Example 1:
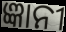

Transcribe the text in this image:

ଜ୍ଞାନୀ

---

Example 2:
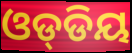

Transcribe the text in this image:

ଓଡ୍‌ଡିୟ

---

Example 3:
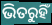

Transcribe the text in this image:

ଭିତରୁହିଁ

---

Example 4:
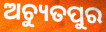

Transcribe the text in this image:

ଅଚ୍ୟୁତପୁର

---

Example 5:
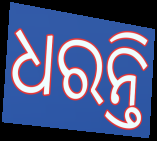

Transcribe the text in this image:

ଧରନ୍ତି